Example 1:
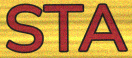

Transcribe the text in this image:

STA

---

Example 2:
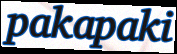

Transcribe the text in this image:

pakapaki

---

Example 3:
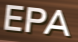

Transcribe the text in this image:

EPA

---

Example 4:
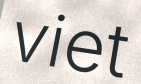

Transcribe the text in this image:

viet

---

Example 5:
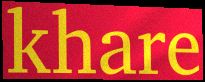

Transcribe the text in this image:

khare